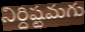
నిర్దిష్టమగు